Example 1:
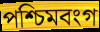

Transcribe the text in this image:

পশ্চিমবংগ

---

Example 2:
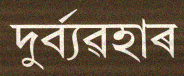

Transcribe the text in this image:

দুৰ্ব্যৱহাৰ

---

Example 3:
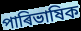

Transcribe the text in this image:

পাৰিভাষিক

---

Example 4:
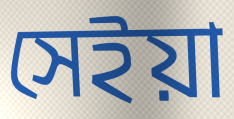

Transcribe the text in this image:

সেইয়া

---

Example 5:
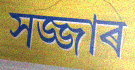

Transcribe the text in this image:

সজ্জাৰ